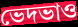
ভেদভাও